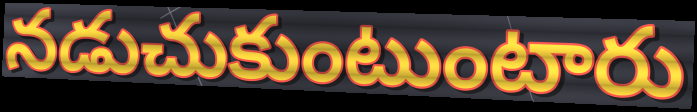
నడుచుకుంటుంటారు